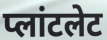
प्लांटलेट